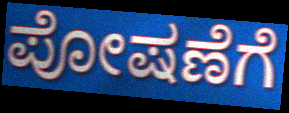
ಪೋಷಣೆಗೆ